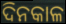
ଦିନକାଳ